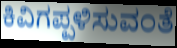
ಕಿವಿಗಪ್ಪಳಿಸುವಂತೆ